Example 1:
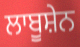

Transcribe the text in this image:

ਲਾਬੂਸ਼ੇਨ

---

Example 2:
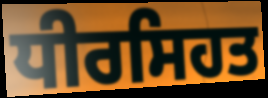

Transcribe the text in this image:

ਧੀਰਸਿਹਤ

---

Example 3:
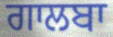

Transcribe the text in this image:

ਗਾਲਬਾ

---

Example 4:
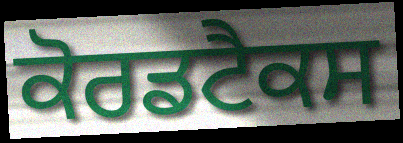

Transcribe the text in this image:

ਕੋਰਡਟੈਕਸ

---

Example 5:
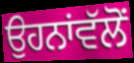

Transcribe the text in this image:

ਉਹਨਾਂਵੱਲੋਂ